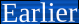
Earlier